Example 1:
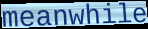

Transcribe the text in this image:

meanwhile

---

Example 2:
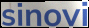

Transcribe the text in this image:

sinovi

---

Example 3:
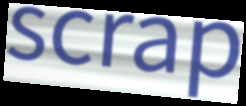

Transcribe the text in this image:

scrap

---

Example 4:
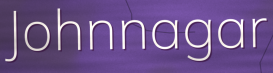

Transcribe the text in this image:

Johnnagar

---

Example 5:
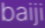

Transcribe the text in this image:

baiji